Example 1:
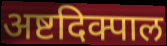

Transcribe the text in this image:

अष्टदिक्पाल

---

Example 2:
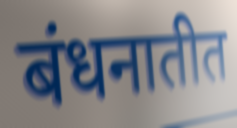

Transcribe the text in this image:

बंधनातीत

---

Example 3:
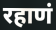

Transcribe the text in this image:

रहाणं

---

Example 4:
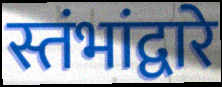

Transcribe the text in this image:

स्तंभांद्वारे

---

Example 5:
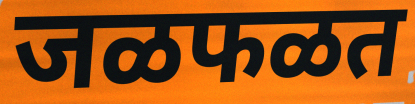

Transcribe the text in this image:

जळफळत